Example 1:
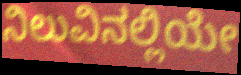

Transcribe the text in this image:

ನಿಲುವಿನಲ್ಲಿಯೇ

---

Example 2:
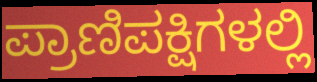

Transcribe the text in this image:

ಪ್ರಾಣಿಪಕ್ಷಿಗಳಲ್ಲಿ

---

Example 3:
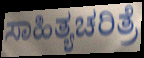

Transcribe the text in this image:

ಸಾಹಿತ್ಯಚರಿತ್ರೆ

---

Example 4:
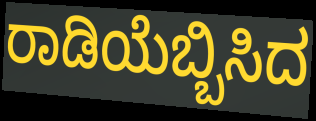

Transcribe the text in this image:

ರಾಡಿಯೆಬ್ಬಿಸಿದ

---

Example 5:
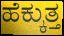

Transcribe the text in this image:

ಹೆಕ್ಕುತ್ತ